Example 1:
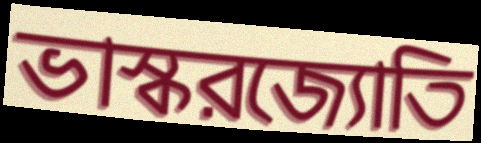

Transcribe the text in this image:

ভাস্করজ্যোতি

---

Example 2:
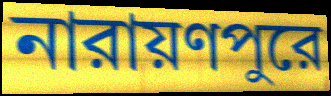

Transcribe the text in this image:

নারায়ণপুরে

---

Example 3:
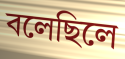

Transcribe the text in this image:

বলেছিলে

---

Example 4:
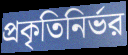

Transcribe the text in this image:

প্রকৃতিনির্ভর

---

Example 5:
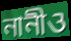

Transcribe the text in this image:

নানীও